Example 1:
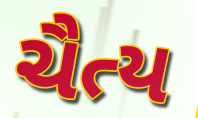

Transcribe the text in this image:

ચૈત્ય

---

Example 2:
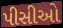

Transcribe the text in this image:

પીસીઓ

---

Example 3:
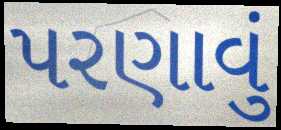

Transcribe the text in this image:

પરણાવું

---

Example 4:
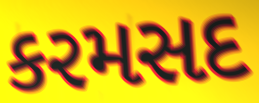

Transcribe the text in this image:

કરમસદ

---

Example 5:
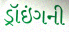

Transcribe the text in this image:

ડ્રૉઇંગની